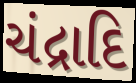
ચંદ્રાદિ